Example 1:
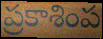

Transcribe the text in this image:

ప్రకాశింప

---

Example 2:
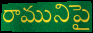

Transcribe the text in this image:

రామునిపై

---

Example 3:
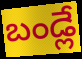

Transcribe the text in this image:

బండ్లే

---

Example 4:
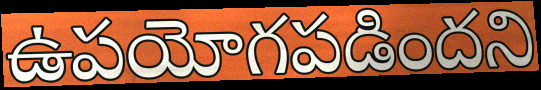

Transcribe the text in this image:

ఉపయోగపడిందని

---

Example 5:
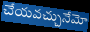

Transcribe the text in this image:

చేయవచ్చునేమో